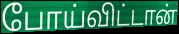
போய்விட்டான்